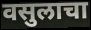
वसुलाचा